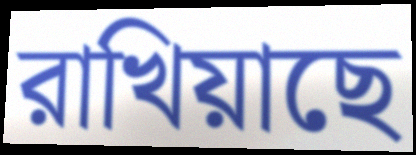
রাখিয়াছে